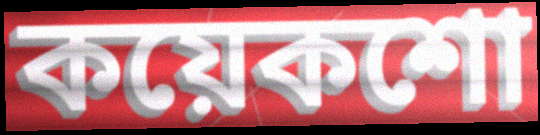
কয়েকশো